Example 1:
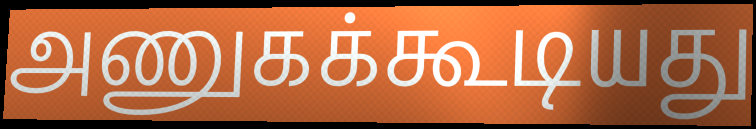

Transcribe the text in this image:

அணுகக்கூடியது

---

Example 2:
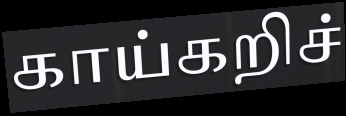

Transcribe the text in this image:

காய்கறிச்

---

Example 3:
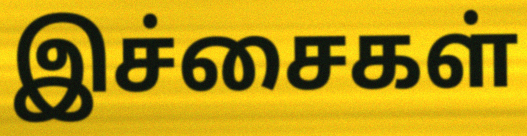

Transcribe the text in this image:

இச்சைகள்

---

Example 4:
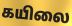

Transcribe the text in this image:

கயிலை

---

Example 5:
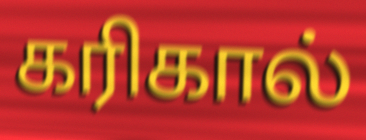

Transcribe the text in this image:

கரிகால்